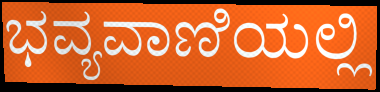
ಭವ್ಯವಾಣಿಯಲ್ಲಿ